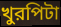
খুরপিটা